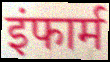
इंफार्म